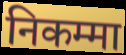
निकम्मा